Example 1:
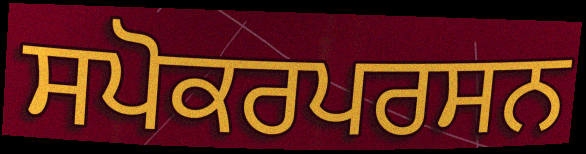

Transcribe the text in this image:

ਸਪੋਕਰਪਰਸਨ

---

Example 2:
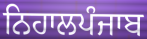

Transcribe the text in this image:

ਨਿਹਾਲਪੰਜਾਬ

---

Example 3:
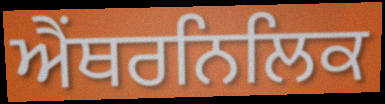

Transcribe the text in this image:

ਐਂਥਰਨਿਲਿਕ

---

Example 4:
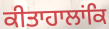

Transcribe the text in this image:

ਕੀਤਾਹਾਲਾਂਕਿ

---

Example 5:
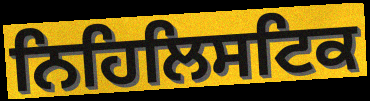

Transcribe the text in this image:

ਨਿਹਿਲਿਸਟਿਕ